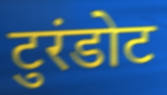
टुरंडोट